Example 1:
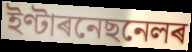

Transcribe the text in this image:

ইণ্টাৰনেছনেলৰ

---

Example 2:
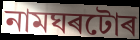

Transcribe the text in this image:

নামঘৰটোৰ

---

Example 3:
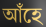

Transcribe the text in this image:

আঁহে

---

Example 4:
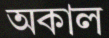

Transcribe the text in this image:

অকাল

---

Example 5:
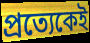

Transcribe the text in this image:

প্ৰত্যেকেই